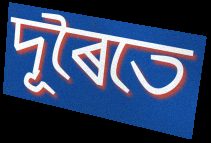
দূৰৈতে